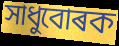
সাধুবোৰক